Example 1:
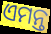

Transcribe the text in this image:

ଏମନ୍ତ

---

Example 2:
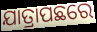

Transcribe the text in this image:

ଯାତ୍ରାପଛରେ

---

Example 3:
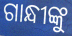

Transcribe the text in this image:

ଗାନ୍ଧୀଙ୍କୁ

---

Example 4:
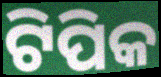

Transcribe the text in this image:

ଟିପିକ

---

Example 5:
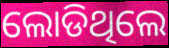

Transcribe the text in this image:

ଲୋଡିଥିଲେ